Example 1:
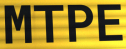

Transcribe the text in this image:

MTPE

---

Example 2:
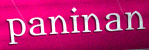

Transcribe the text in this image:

paninan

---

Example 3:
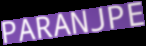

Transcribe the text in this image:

PARANJPE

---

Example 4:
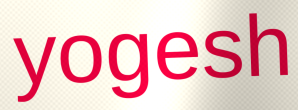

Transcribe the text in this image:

yogesh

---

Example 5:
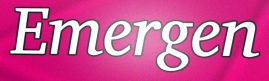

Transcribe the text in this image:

Emergen